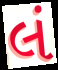
લં